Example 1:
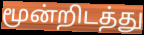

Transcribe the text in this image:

மூன்றிடத்து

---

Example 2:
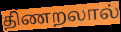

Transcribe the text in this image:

திணறலால்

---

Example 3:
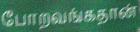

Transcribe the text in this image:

போறவங்கதான்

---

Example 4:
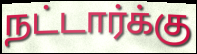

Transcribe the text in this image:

நட்டார்க்கு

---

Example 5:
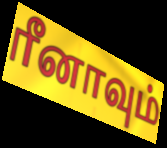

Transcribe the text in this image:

ரீனாவும்